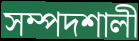
সম্পদশালী